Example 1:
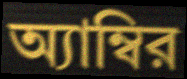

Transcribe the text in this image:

অ্যাম্বির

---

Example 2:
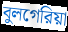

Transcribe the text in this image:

বুলগেরিয়া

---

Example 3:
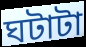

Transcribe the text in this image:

ঘটাটা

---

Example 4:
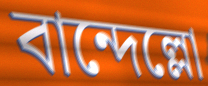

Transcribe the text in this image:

বান্দেল্লো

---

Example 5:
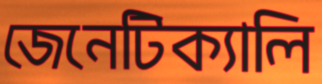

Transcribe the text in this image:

জেনেটিক্যালি